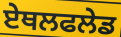
ਏਥਲਫਲੇਡ